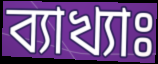
ব্যাখ্যাঃ